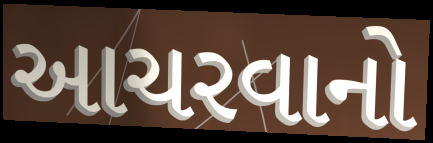
આચરવાનો